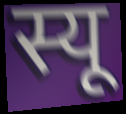
स्यू